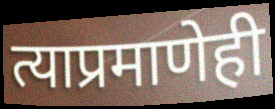
त्याप्रमाणेही